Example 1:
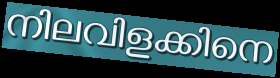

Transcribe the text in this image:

നിലവിളക്കിനെ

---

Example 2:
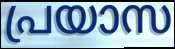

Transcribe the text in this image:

പ്രയാസ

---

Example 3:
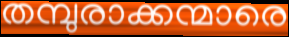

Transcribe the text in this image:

തമ്പുരാക്കന്മാരെ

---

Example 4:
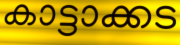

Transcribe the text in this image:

കാട്ടാക്കട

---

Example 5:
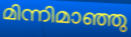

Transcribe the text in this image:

മിന്നിമാഞ്ഞു